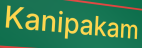
Kanipakam